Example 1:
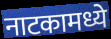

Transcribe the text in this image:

नाटकामध्ये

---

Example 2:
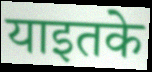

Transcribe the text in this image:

याइतके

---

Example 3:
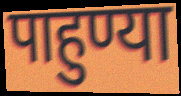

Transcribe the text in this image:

पाहुण्या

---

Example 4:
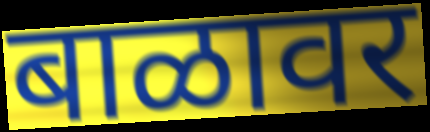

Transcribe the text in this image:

बाळावर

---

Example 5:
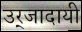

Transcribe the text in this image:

उर्जादायी